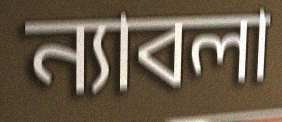
ন্যাবলা